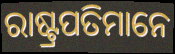
ରାଷ୍ଟ୍ରପତିମାନେ